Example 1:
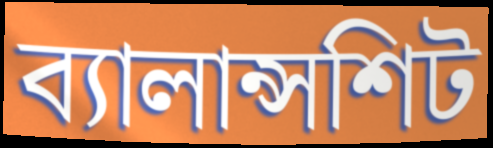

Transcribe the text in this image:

ব্যালান্সশিট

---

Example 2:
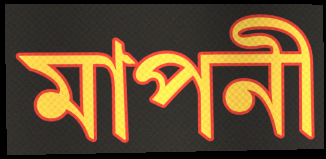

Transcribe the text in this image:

মাপনী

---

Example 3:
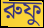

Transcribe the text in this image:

রুফু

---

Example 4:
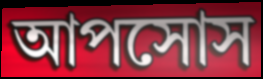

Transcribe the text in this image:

আপসোস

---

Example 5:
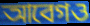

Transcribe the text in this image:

আবেগও